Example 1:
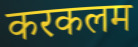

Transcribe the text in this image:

करकलम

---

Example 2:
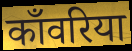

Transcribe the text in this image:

काँवरिया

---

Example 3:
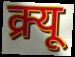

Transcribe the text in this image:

क्र्यू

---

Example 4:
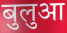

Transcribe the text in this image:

बुलुआ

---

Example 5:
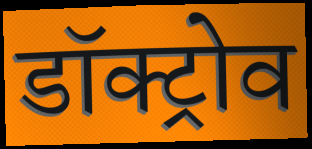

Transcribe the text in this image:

डॉक्ट्रोव